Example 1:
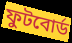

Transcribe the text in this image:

ফুটবোর্ড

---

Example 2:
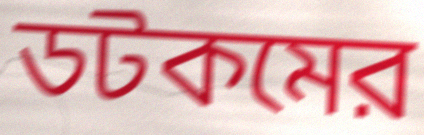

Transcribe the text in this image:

ডটকমের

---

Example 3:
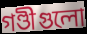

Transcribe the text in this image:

গণ্ডীগুলো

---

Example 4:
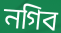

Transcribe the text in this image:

নগিব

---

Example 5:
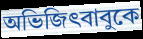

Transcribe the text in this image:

অভিজিৎবাবুকে